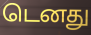
டெனது